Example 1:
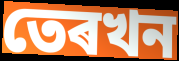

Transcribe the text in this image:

তেৰখন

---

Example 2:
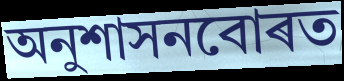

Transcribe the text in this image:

অনুশাসনবোৰত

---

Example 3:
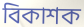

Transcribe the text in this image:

বিকাশক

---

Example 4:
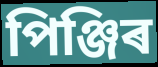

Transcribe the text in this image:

পিঞ্জিৰ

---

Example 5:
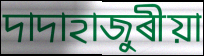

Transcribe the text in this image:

দাদাহাজুৰীয়া